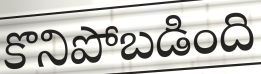
కొనిపోబడింది